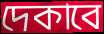
দেকাবে